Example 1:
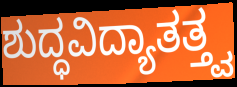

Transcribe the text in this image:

ಶುದ್ಧವಿದ್ಯಾತತ್ತ್ವ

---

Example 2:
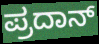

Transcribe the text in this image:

ಪ್ರದಾನ್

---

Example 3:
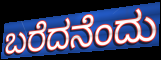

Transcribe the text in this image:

ಬರೆದನೆಂದು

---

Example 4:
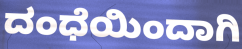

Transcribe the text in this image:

ದಂಧೆಯಿಂದಾಗಿ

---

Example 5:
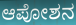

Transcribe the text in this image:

ಆಪೋಶನ